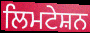
ਲਿਮਟੇਸ਼ਨ